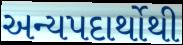
અન્યપદાર્થોથી